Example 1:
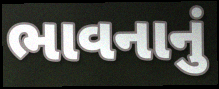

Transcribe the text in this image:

ભાવનાનું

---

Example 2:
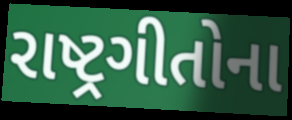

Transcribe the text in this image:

રાષ્ટ્રગીતોના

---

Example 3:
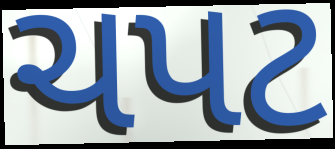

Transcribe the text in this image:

ચપટ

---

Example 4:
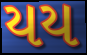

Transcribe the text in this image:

યય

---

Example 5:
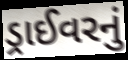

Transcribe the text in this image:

ડ્રાઈવરનું